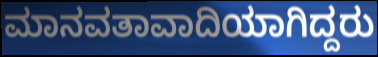
ಮಾನವತಾವಾದಿಯಾಗಿದ್ದರು